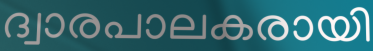
ദ്വാരപാലകരായി